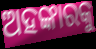
ଅହଙ୍କାରକୁ